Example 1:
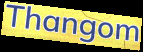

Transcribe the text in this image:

Thangom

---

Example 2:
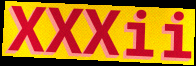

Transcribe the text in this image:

XXXii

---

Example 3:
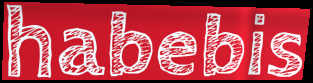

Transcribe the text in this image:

habebis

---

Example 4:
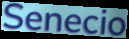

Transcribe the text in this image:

Senecio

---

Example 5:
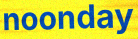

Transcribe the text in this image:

noonday